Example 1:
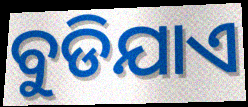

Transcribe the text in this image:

ବୁଡିଯାଏ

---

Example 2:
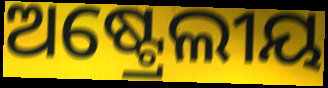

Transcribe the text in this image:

ଅଷ୍ଟ୍ରେଲୀୟ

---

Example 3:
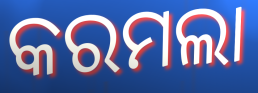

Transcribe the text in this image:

କରମଲା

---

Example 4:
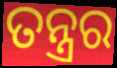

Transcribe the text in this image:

ତନ୍ତ୍ରର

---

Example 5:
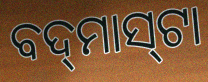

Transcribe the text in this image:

ବଦ୍‌ମାସ୍‌ଟା